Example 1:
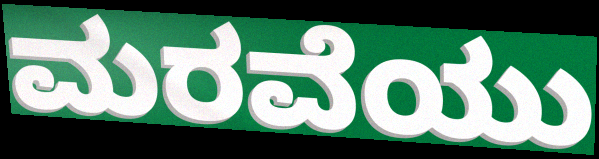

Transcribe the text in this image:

ಮರವೆಯು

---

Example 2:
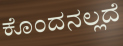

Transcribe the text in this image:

ಕೊಂದನಲ್ಲದೆ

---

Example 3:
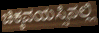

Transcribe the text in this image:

ಚಿಕ್ಕವಯಸ್ಸಿನಲ್ಲಿ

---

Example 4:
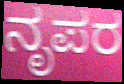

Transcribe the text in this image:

ನೃಪರ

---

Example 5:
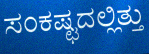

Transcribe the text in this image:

ಸಂಕಷ್ಟದಲ್ಲಿತ್ತು